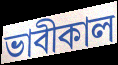
ভাবীকাল